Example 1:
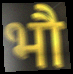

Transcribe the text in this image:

भौ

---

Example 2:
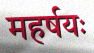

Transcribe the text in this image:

महर्षयः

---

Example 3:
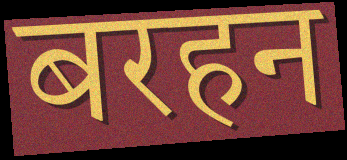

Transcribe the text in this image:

बरहन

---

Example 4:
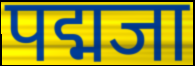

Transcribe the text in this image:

पद्मजा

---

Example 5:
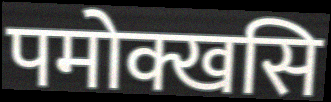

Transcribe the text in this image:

पमोक्खसि